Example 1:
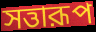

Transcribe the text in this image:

সত্তারূপ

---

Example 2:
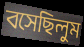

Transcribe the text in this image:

বসেছিলুম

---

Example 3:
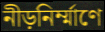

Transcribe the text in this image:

নীড়নির্ম্মাণে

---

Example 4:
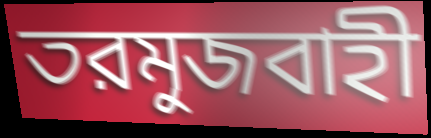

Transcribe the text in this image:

তরমুজবাহী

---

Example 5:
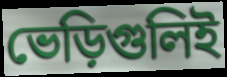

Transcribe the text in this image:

ভেড়িগুলিই